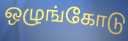
ஒழுங்கோடு